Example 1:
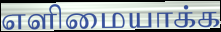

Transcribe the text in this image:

எளிமையாக்க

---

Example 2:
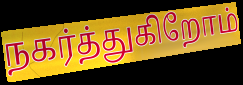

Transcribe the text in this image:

நகர்த்துகிறோம்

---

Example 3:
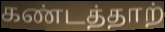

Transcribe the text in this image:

கண்டத்தாற்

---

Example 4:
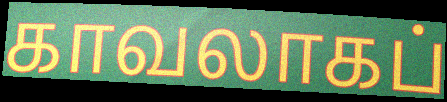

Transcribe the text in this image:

காவலாகப்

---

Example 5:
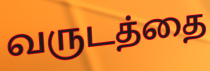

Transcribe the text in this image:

வருடத்தை